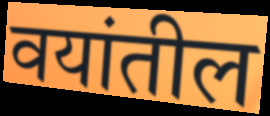
वयांतील